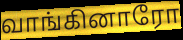
வாங்கினாரோ